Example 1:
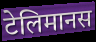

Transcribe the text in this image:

टेलिमानस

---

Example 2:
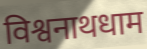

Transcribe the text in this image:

विश्वनाथधाम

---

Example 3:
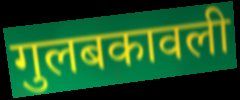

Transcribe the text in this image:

गुलबकावली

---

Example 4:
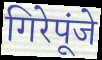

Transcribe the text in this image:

गिरेपूंजे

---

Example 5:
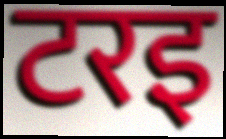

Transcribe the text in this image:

टरइ